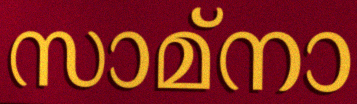
സാമ്നാ